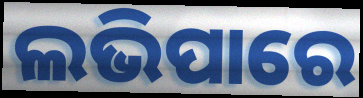
ଲଭିପାରେ